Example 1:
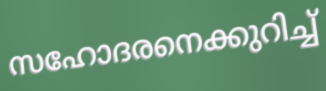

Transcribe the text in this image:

സഹോദരനെക്കുറിച്ച്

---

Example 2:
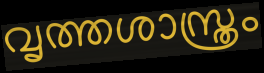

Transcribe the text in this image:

വൃത്തശാസ്ത്രം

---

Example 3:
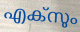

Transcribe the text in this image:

എക്‌സും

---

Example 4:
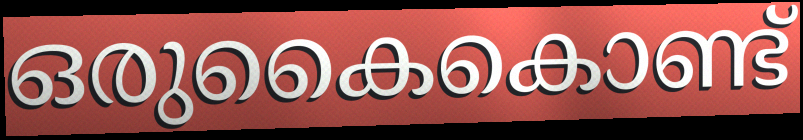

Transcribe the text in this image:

ഒരുകൈകൊണ്ട്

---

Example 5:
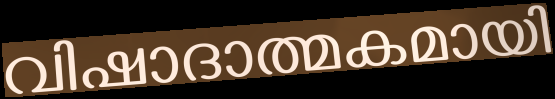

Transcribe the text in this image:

വിഷാദാത്മകമായി